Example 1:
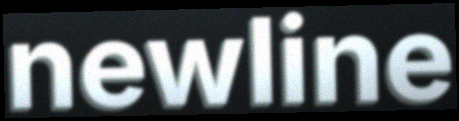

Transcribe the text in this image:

newline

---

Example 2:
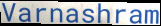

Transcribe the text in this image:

Varnashram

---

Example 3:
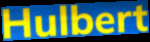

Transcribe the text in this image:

Hulbert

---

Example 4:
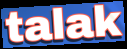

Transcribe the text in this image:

talak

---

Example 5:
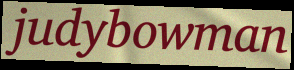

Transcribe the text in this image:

judybowman